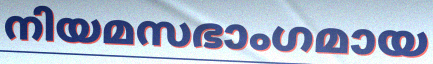
നിയമസഭാംഗമായ